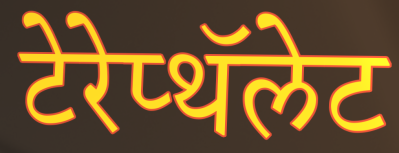
टेरेप्थॅलेट